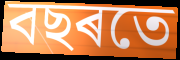
বছৰতে